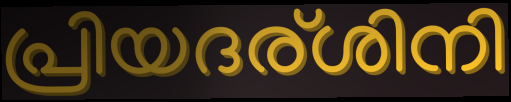
പ്രിയദര്ശിനി